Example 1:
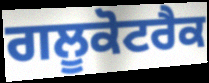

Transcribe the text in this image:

ਗਲੂਕੋਟਰੈਕ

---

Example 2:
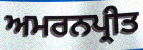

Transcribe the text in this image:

ਅਮਰਨਪ੍ਰੀਤ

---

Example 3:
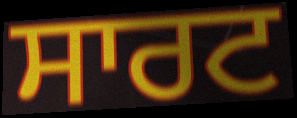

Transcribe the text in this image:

ਸਾਰਟ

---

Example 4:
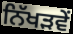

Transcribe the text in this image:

ਨਿੱਖੜਵੇਂ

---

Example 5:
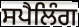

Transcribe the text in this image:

ਸਪੈਲਿੰਗ